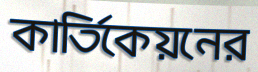
কার্তিকেয়নের